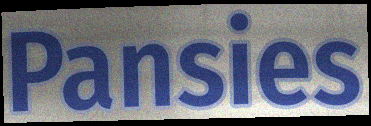
Pansies